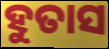
ହୁତାସ